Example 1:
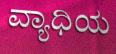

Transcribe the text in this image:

ವ್ಯಾಧಿಯ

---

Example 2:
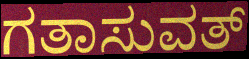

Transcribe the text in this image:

ಗತಾಸುವತ್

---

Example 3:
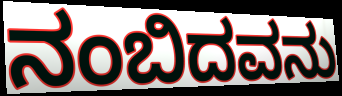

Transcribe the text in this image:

ನಂಬಿದವನು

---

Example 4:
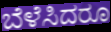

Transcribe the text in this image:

ಬೆಳೆಸಿದರೂ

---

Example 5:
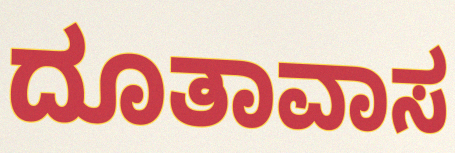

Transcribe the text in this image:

ದೂತಾವಾಸ